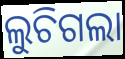
ଲୁଚିଗଲା